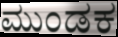
ಮುಂಡಕ